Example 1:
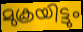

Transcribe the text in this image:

മുക്രയിട്ടും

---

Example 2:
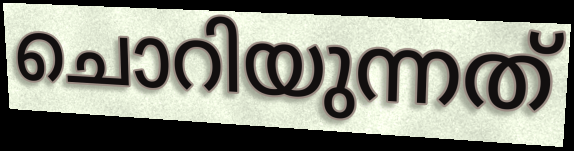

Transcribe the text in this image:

ചൊറിയുന്നത്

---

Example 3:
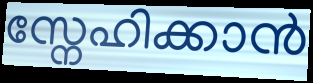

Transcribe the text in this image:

സ്നേഹിക്കാൻ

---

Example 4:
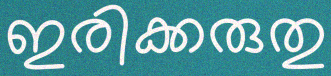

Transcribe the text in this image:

ഇരിക്കരുതു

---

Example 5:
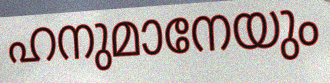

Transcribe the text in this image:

ഹനുമാനേയും